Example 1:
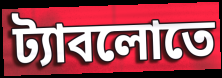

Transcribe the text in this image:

ট্যাবলোতে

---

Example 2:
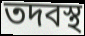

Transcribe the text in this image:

তদবস্থ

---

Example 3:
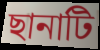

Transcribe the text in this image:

ছানাটি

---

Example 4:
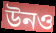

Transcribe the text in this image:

উনও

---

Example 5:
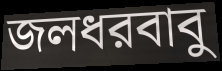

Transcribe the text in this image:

জলধরবাবু